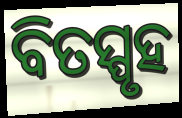
ବିତସ୍ପୃହ